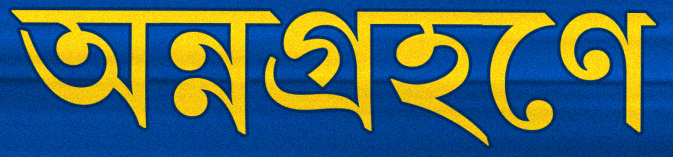
অন্নগ্রহণে